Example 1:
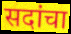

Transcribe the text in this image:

सदांचा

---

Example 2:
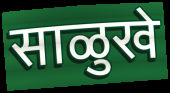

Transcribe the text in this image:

साळुखे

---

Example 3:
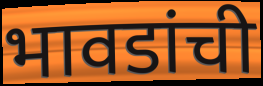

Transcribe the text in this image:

भावडांची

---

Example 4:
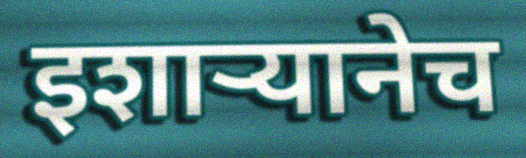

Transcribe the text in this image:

इशाऱ्यानेच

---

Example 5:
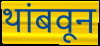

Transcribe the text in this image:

थांबवून